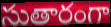
సుతారంగా